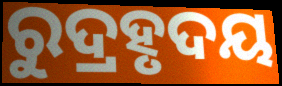
ରୁଦ୍ରହୃଦୟ